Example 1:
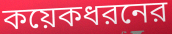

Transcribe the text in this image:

কয়েকধরনের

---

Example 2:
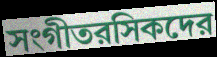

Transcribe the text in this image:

সংগীতরসিকদের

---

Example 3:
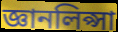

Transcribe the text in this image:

জ্ঞানলিপ্সা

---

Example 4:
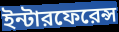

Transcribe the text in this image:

ইন্টারফেরেন্স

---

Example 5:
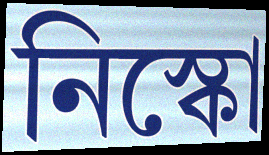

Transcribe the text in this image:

নিস্কো